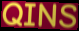
QINS